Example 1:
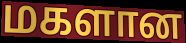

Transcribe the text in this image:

மகளான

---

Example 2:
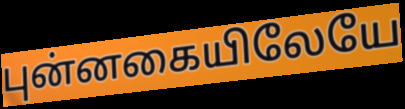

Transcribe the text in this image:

புன்னகையிலேயே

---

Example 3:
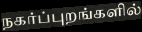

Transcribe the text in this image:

நகர்ப்புறங்களில்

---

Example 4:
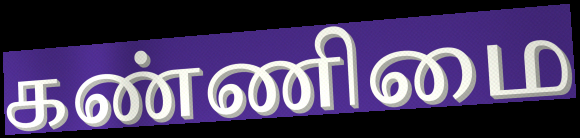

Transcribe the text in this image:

கண்ணிமை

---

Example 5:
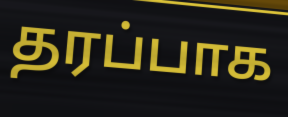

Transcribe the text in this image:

தரப்பாக